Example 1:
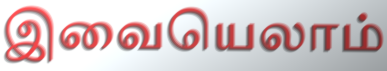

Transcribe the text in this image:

இவையெலாம்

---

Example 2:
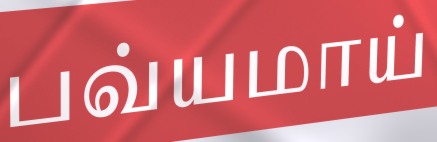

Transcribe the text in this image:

பவ்யமாய்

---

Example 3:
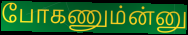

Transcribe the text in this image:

போகணும்ன்னு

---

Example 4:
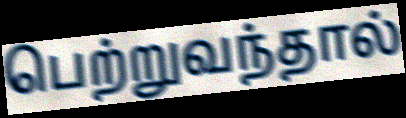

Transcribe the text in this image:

பெற்றுவந்தால்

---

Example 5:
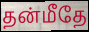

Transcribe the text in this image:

தன்மீதே